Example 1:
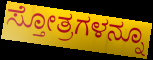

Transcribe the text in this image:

ಸ್ತೋತ್ರಗಳನ್ನೂ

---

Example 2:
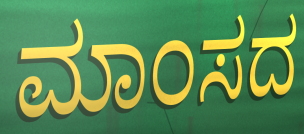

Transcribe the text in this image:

ಮಾಂಸದ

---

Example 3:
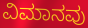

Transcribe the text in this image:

ವಿಮಾನವು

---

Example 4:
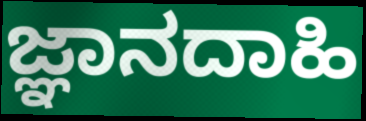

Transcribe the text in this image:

ಜ್ಞಾನದಾಹಿ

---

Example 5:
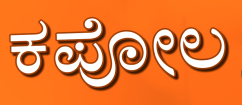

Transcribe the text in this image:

ಕಪೋಲ